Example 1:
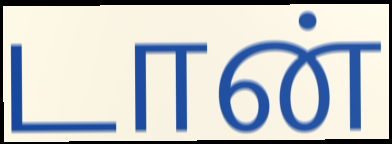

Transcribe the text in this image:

டான்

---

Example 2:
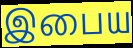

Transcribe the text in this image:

இபைய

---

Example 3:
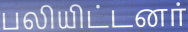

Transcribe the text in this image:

பலியிட்டனர்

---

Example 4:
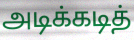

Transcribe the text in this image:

அடிக்கடித்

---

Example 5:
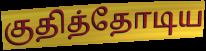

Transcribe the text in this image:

குதித்தோடிய